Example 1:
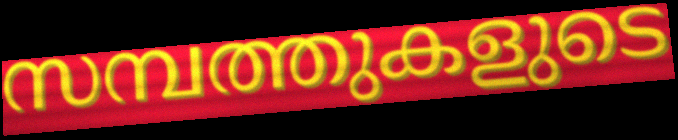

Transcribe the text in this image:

സമ്പത്തുകളുടെ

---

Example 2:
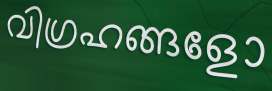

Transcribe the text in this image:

വിഗ്രഹങ്ങളോ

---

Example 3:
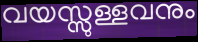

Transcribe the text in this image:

വയസ്സുള്ളവനും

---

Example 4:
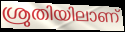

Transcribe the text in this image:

ശ്രുതിയിലാണ്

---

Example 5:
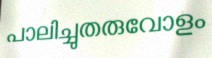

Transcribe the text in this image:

പാലിച്ചുതരുവോളം